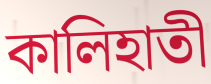
কালিহাতী